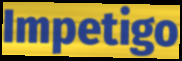
Impetigo